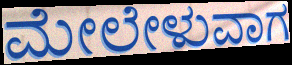
ಮೇಲೇಳುವಾಗ